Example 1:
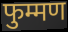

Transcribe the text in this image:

फुम्मण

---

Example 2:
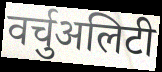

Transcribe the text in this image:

वर्चुअलिटी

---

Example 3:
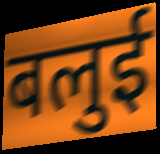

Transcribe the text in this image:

बलुई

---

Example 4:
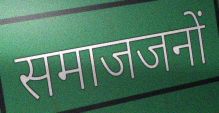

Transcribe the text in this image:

समाजजनों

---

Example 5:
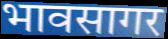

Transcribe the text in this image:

भावसागर